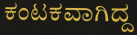
ಕಂಟಕವಾಗಿದ್ದ